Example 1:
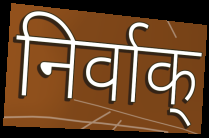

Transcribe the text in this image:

निर्वाक्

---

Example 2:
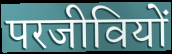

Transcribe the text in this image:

परजीवियों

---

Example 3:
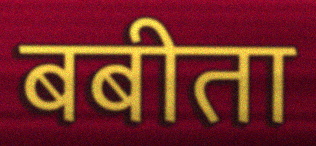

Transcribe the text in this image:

बबीता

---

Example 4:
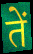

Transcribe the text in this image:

तें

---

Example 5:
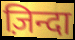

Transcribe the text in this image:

ज़िन्दा